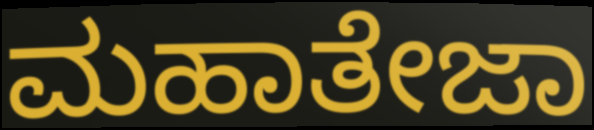
ಮಹಾತೇಜಾ